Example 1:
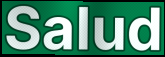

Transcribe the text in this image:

Salud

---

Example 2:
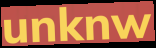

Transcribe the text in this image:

unknw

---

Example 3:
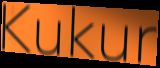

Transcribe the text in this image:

Kukur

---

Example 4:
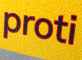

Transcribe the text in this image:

proti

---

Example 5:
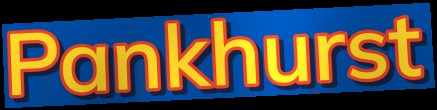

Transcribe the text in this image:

Pankhurst